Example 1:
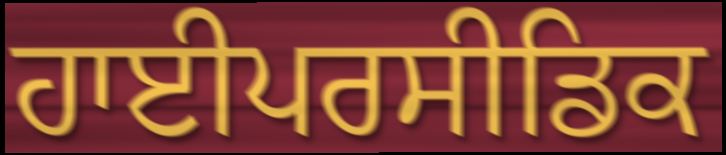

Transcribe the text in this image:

ਹਾਈਪਰਸੀਡਿਕ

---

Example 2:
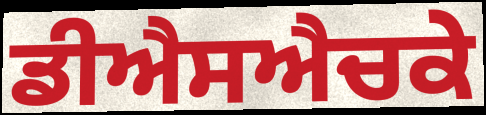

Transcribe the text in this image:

ਡੀਐਸਐਚਕੇ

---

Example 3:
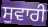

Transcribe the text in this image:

ਸੁਵਾਰੀ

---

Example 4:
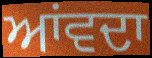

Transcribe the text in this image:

ਆਂਵਦਾ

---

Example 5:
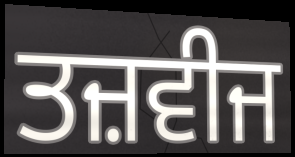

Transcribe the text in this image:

ਤਜ਼ਵੀਜ